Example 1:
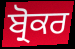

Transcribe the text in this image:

ਬ੍ਰੋਕਰ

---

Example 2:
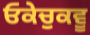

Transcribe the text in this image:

ਓਕੇਚੁਕਵੂ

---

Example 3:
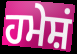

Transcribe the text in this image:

ਹਮੇਸ਼ਂ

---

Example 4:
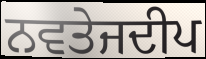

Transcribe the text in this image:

ਨਵਤੇਜਦੀਪ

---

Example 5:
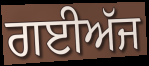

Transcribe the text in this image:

ਗਈਅੱਜ